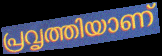
പ്രവൃത്തിയാണ്